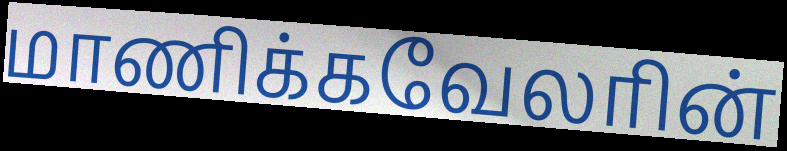
மாணிக்கவேலரின்